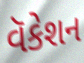
વૅકેશન